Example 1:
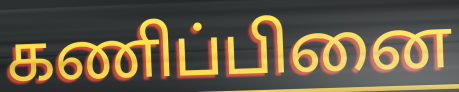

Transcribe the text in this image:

கணிப்பினை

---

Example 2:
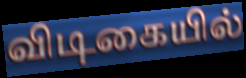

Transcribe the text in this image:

விடிகையில்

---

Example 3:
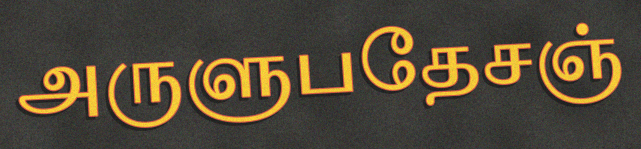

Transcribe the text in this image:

அருளுபதேசஞ்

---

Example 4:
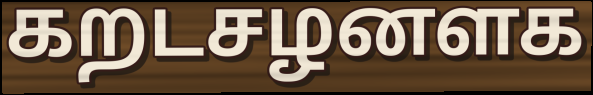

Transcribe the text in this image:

கறடசழனளக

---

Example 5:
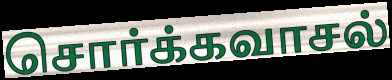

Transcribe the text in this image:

சொர்க்கவாசல்